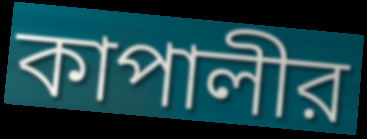
কাপালীর